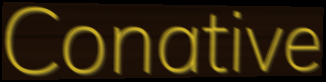
Conative